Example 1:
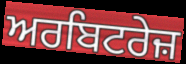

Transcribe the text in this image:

ਅਰਬਿਟਰੇਜ਼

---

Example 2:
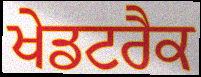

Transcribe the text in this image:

ਖੇਡਟਰੈਕ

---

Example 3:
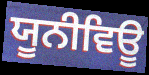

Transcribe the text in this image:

ਯੂਨੀਵਿਊ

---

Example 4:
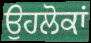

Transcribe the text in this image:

ਉਹਲੋਕਾਂ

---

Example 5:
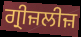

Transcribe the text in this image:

ਗ੍ਰੀਜ਼ਲੀਜ਼